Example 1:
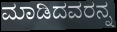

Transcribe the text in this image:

ಮಾಡಿದವರನ್ನ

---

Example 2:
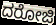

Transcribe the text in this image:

ದರೋಜಿ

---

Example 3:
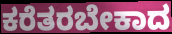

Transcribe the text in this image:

ಕರೆತರಬೇಕಾದ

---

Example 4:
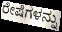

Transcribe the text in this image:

ರೇಷೆಗಳನ್ನು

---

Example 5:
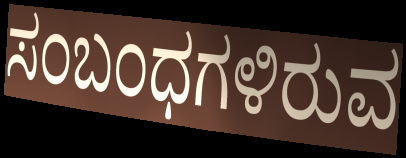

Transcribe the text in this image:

ಸಂಬಂಧಗಳಿರುವ